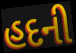
હદની